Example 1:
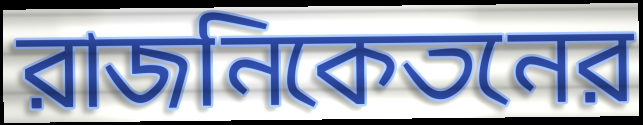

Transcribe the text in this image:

রাজনিকেতনের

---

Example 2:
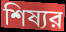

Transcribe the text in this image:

শিষ্যর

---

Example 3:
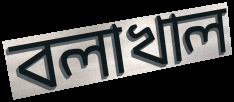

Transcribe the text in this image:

বলাখাল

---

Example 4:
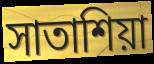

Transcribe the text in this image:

সাতাশিয়া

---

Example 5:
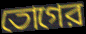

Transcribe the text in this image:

তোগের